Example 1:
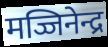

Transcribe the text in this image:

मज्जिनेन्द्र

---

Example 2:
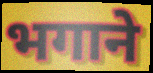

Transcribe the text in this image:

भगाने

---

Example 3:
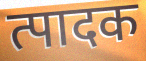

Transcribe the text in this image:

त्पादक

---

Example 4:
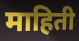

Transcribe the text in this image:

माहिती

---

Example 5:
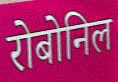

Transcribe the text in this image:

रोबोनिल